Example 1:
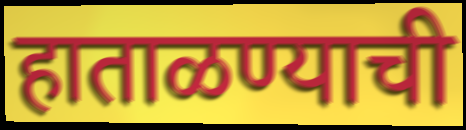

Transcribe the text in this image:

हाताळण्याची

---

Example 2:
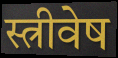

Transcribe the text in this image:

स्त्रीवेष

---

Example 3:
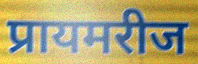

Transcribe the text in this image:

प्रायमरीज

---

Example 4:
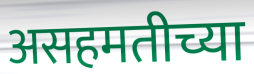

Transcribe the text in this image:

असहमतीच्या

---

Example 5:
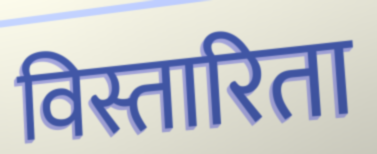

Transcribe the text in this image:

विस्तारिता